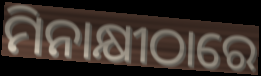
ମିନାକ୍ଷୀଠାରେ